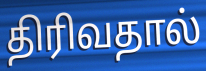
திரிவதால்